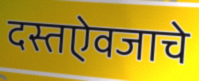
दस्तऐवजाचे